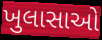
ખુલાસાઓ